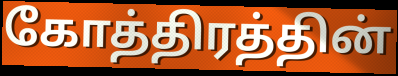
கோத்திரத்தின்